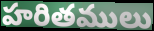
హరితములు